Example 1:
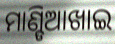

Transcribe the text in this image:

ମାଣ୍ଡିଆଖାଇ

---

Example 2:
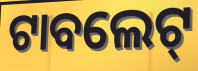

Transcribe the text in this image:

ଟାବଲେଟ୍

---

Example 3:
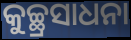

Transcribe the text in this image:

କୁଚ୍ଛ୍ରସାଧନା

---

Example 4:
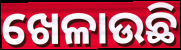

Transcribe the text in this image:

ଖେଳାଉଛି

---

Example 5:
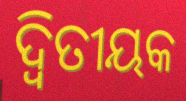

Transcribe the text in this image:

ଦ୍ୱିତୀୟକ